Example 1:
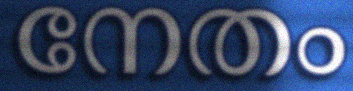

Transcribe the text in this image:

നേതം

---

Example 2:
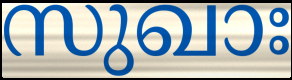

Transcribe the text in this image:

സുഖാഃ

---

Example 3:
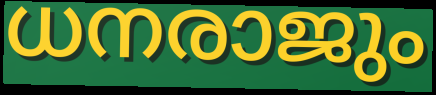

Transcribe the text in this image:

ധനരാജും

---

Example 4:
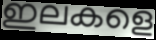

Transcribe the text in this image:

ഇലകളെ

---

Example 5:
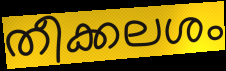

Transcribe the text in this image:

തീക്കലശം